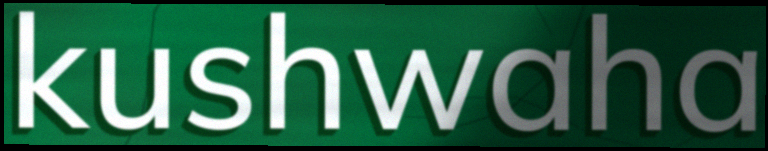
kushwaha